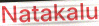
Natakalu